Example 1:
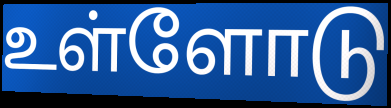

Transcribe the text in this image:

உள்ளோடு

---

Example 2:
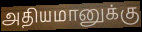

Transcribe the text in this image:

அதியமானுக்கு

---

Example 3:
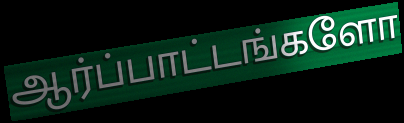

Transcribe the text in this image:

ஆர்ப்பாட்டங்களோ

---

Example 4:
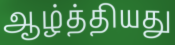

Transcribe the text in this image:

ஆழ்த்தியது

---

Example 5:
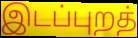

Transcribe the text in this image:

இடப்புறத்